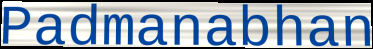
Padmanabhan